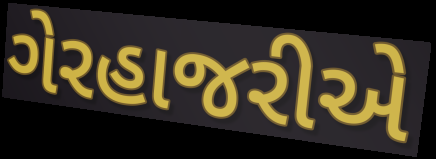
ગેરહાજરીએ